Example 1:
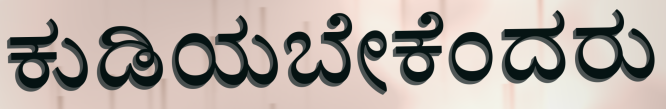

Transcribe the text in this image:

ಕುಡಿಯಬೇಕೆಂದರು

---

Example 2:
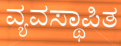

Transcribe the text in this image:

ವ್ಯವಸ್ಥಾಪಿತ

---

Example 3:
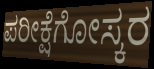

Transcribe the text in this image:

ಪರೀಕ್ಷೆಗೋಸ್ಕರ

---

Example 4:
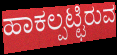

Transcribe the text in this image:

ಹಾಕಲ್ಪಟ್ಟಿರುವ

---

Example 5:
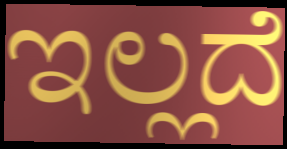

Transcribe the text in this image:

ಇಲ್ಲದೆ